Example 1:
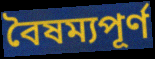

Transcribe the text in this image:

বৈষম্যপূর্ণ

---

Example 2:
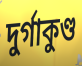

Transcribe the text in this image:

দুর্গাকুণ্ড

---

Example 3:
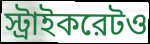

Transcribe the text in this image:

স্ট্রাইকরেটও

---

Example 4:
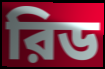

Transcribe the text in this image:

রিড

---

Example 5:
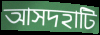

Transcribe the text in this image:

আসদহাটি